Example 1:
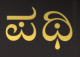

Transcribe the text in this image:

ಪಥಿ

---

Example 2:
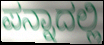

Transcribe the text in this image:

ಪನ್ನಾದಲ್ಲಿ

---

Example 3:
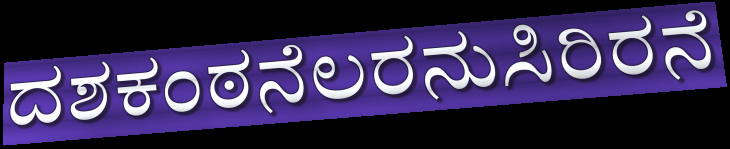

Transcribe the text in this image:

ದಶಕಂಠನೆಲರನುಸಿರಿರನೆ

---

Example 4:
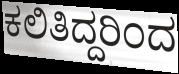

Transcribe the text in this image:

ಕಲಿತಿದ್ದರಿಂದ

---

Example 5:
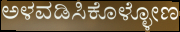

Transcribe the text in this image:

ಅಳವಡಿಸಿಕೊಳ್ಳೋಣ